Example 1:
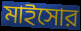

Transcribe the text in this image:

মাইসোর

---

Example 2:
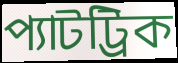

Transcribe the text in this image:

প্যাটট্রিক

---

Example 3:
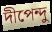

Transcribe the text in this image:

দীপেন্দু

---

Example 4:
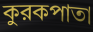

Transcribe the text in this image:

কুরকপাতা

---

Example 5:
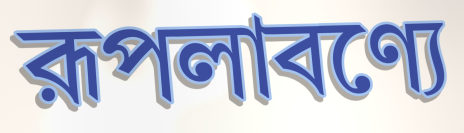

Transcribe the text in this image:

রূপলাবণ্যে